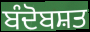
ਬੰਦੋਬਸ਼ਤ